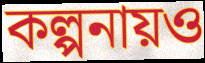
কল্পনায়ও